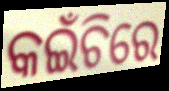
କଇଁଚିରେ